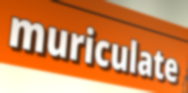
muriculate